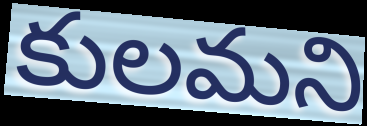
కులమని